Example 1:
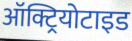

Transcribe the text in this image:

ऑक्ट्रियोटाइड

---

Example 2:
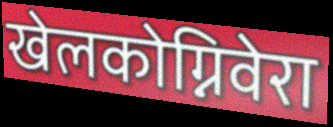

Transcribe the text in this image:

खेलकोग्निवेरा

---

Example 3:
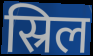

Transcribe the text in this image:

स्रिल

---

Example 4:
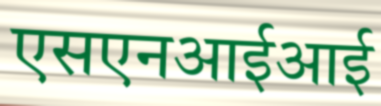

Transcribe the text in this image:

एसएनआईआई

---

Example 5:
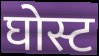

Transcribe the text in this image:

घोस्ट